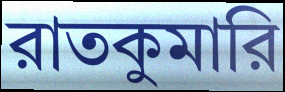
রাতকুমারি